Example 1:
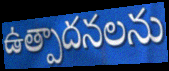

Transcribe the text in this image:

ఉత్పాదనలను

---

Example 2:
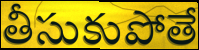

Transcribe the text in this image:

తీసుకుపోతే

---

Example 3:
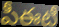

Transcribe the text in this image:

పీఈటీ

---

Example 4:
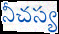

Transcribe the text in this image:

నీచస్య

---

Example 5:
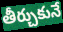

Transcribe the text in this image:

తీర్చుకునే